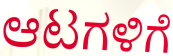
ಆಟಗಳಿಗೆ